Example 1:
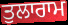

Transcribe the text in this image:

ਤੁਲਾਰਾਮ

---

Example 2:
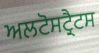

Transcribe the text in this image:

ਅਲਟੋਸਟ੍ਰੈਟਸ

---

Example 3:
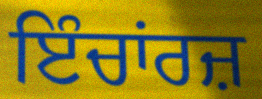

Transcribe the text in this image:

ਇੰਚਾਂਰਜ਼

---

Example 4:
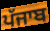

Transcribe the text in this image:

ਪੱਜਾਬ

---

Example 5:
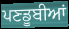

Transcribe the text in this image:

ਪਣਡੂਬੀਆਂ